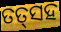
ତତ୍‌ସହ